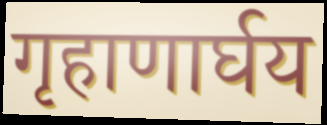
गृहाणार्घय